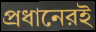
প্রধানেরই